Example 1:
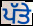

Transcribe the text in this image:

ਪੱਤੇ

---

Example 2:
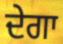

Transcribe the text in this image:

ਦੇਗਾ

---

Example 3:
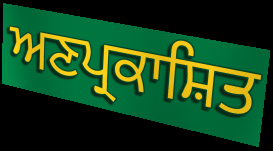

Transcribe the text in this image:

ਅਣਪ੍ਰਕਾਸ਼ਿਤ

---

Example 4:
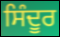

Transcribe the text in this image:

ਸਿੰਦੂਰ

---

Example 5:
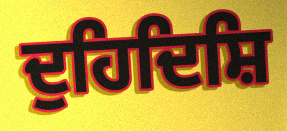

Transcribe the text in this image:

ਦੁਹਿਦਿਸ਼ਿ